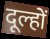
दूल्हों